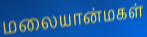
மலையான்மகள்